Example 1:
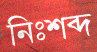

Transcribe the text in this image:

নিঃশব্দ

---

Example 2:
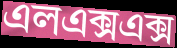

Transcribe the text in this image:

এলএক্সএক্স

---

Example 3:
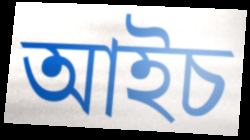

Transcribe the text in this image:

আইচ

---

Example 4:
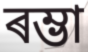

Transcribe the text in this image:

ৰম্ভা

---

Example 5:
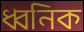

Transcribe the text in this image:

ধ্বনিক